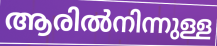
ആരിൽനിന്നുള്ള